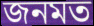
জনমত